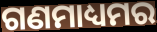
ଗଣମାଧ୍ୟମର